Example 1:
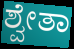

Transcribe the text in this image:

ಶ್ವೇತಾ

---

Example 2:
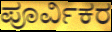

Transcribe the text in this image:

ಪೂರ್ವಿಕರ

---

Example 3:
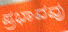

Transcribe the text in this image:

ಪ್ರಭಾವವು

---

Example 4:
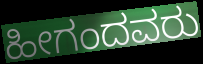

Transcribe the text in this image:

ಹೀಗಂದವರು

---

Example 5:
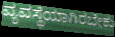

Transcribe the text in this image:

ವ್ಯವಸ್ಥೆಯಾಗಿರಬೇಕು